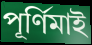
পূৰ্ণিমাই